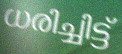
ധരിച്ചിട്ട്